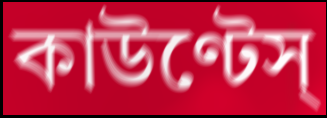
কাউণ্টেস্